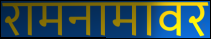
रामनामावर